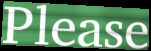
Please